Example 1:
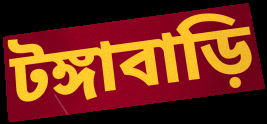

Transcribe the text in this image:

টঙ্গাবাড়ি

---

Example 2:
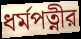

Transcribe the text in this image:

ধর্মপত্নীর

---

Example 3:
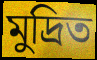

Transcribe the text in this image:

মুদ্রিত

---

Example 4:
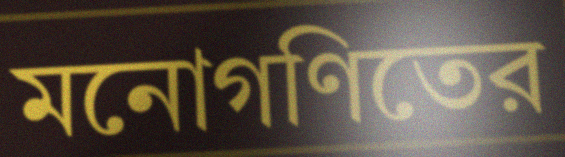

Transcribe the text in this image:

মনোগণিতের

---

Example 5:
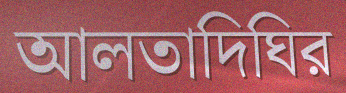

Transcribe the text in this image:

আলতাদিঘির